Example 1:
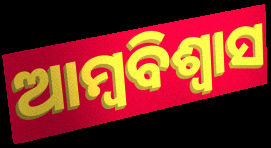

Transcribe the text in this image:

ଆମ୍ବବିଶ୍ଵାସ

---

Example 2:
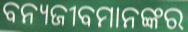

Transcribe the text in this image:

ବନ୍ୟଜୀବମାନଙ୍କର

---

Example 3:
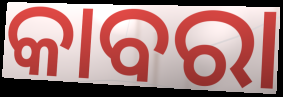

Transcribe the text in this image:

କାବରା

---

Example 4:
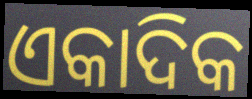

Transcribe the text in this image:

ଏକାଦିକ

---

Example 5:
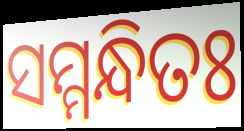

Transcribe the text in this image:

ସମ୍ମନ୍ଧିତଃ